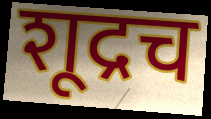
शूद्रच